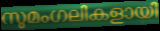
സുമംഗലികളായി